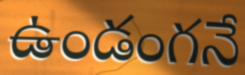
ఉండంగనే